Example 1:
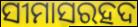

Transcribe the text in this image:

ସୀମାସରହଦ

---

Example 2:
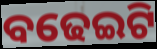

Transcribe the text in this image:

ବଢେଇଟି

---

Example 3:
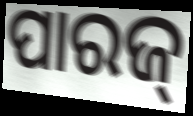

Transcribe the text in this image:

ପାରଜ୍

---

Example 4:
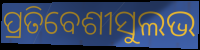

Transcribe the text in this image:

ପ୍ରତିବେଶୀସୁଲଭ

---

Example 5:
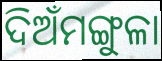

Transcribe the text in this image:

ଦିଅଁମଙ୍ଗୁଳା